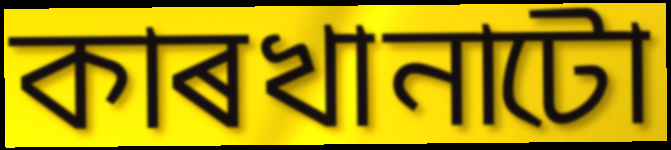
কাৰখানাটো